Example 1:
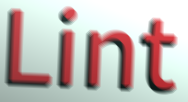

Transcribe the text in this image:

Lint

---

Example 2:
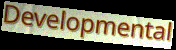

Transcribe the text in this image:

Developmental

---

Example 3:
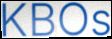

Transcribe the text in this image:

KBOs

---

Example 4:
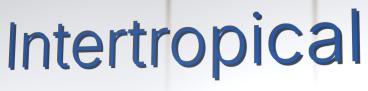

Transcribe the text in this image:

Intertropical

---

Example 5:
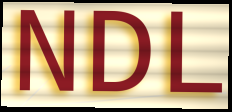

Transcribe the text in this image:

NDL